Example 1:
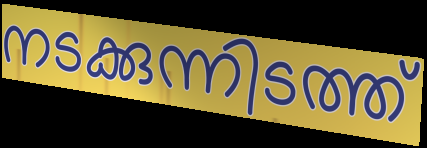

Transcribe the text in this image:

നടക്കുന്നിടത്ത്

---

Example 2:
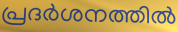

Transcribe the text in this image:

പ്രദർശനത്തിൽ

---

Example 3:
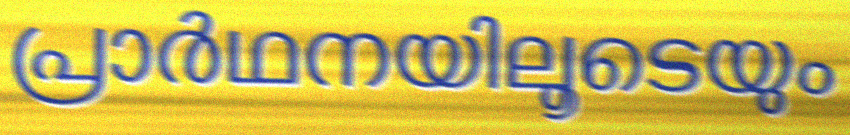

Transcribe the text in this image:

പ്രാർഥനയിലൂടെയും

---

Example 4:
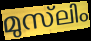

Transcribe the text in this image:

മുസ്‌ലിം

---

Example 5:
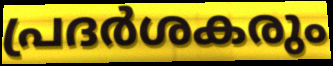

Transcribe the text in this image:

പ്രദർശകരും